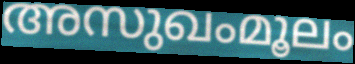
അസുഖംമൂലം